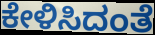
ಕೇಳಿಸಿದಂತೆ